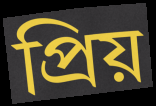
প্ৰিয়